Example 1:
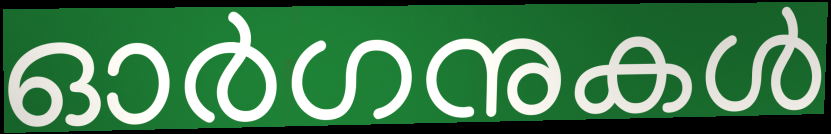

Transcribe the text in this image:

ഓർഗനുകൾ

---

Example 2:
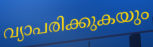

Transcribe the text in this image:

വ്യാപരിക്കുകയും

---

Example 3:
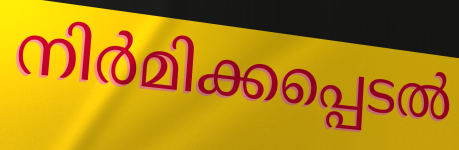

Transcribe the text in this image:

നിർമിക്കപ്പെടൽ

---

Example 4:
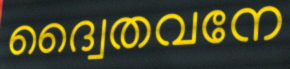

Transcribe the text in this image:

ദ്വൈതവനേ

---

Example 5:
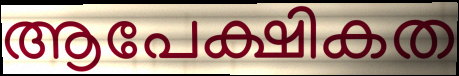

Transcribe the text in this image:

ആപേക്ഷികത